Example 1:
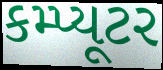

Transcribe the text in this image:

કમ્પ્યૂટર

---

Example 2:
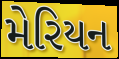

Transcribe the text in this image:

મેરિયન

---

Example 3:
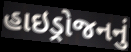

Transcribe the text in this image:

હાઇડ્રોજનનું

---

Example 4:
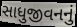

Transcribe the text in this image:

સાધુજીવનનું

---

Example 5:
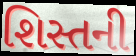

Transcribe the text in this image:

શિસ્તની